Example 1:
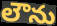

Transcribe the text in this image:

లౌను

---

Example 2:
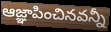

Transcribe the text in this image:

ఆజ్ఞాపించినవన్నీ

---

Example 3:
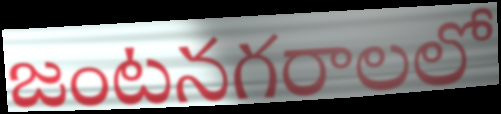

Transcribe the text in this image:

జంటనగరాలలో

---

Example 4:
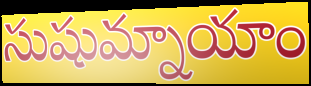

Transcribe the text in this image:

సుషుమ్నాయాం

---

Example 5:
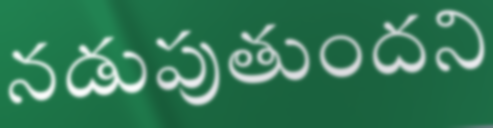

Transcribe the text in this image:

నడుపుతుందని